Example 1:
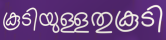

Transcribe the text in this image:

കൂടിയുള്ളതുകൂടി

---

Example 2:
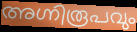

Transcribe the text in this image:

അഗ്നിരൂപവും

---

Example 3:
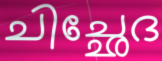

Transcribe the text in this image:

ചിച്ഛേദ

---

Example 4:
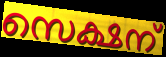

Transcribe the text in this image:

സെക്ഷന്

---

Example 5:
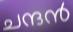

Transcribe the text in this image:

ചന്ദൻ